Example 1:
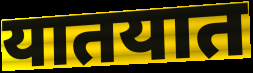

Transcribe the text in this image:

यातयात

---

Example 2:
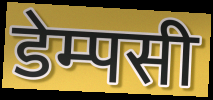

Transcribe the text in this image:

डेम्पसी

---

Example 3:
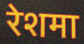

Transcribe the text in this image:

रेशमा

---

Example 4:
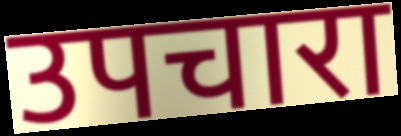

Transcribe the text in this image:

उपचारा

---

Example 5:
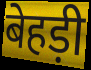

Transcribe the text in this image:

बेहड़ी